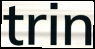
trin